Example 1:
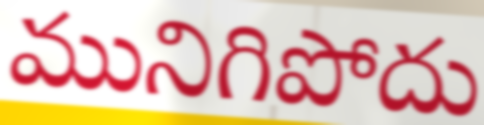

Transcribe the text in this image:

మునిగిపోదు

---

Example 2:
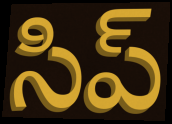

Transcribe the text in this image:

సిప్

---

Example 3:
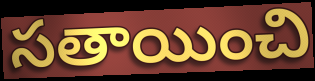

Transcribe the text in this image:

సతాయించి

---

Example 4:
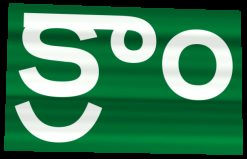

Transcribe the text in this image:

క్రాం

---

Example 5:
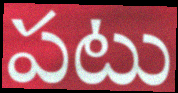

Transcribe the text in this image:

పటు